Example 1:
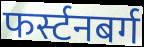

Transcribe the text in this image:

फर्स्टनबर्ग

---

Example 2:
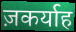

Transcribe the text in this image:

ज़कर्याह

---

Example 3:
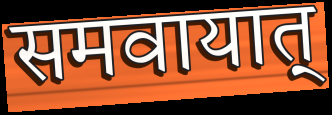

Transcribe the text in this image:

समवायात्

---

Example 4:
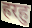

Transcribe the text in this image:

हरहु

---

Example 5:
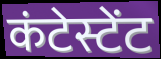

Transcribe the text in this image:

कंटेस्टेंट